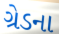
ગ્રેડના